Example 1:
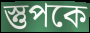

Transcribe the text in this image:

স্তুপকে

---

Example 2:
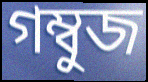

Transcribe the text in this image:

গম্বুজ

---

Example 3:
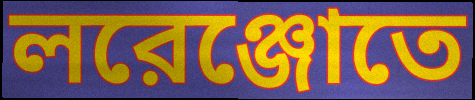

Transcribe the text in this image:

লরেঞ্জোতে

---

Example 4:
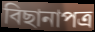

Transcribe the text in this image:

বিছানাপত্র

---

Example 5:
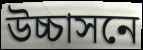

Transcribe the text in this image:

উচ্চাসনে